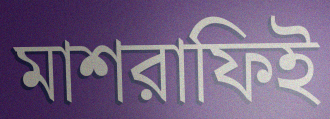
মাশরাফিই